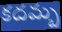
కదమ్బ